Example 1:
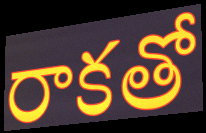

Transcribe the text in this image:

రాకతో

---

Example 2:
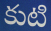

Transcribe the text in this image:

కుటి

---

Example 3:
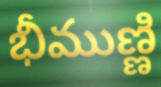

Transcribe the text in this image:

భీముణ్ణి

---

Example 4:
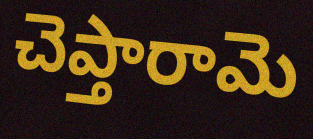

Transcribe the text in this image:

చెప్తారామె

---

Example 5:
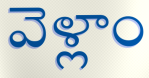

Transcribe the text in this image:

వెళ్లాం